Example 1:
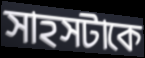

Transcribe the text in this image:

সাহসটাকে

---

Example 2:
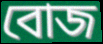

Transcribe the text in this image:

বোজ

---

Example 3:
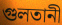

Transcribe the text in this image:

গুলতানী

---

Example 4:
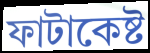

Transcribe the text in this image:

ফাটাকেষ্ট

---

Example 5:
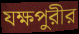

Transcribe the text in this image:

যক্ষপুরীর